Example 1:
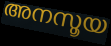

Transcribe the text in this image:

അനസൂയ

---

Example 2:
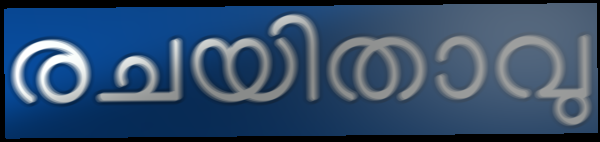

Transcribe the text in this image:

രചയിതാവു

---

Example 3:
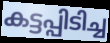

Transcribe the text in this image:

കട്ടപ്പിടിച്ച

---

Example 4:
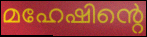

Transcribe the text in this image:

മഹേഷിന്റെ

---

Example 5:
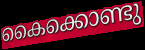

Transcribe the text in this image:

കൈക്കൊണ്ടു